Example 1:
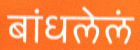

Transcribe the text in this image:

बांधलेलं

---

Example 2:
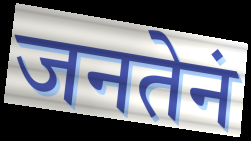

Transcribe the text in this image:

जनतेनं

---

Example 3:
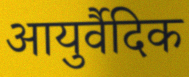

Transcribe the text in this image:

आयुर्वैदिक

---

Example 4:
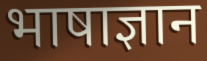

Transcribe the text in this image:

भाषाज्ञान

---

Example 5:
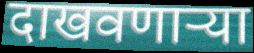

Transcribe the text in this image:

दाखवणाऱ्या